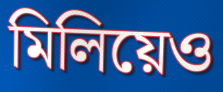
মিলিয়েও